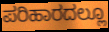
ಪರಿಹಾರದಲ್ಲೂ